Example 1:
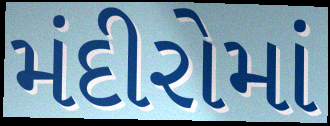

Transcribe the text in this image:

મંદીરોમાં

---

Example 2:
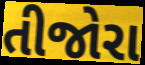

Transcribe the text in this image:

તીજોરા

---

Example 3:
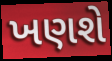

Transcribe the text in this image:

ખણશે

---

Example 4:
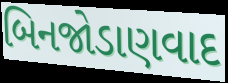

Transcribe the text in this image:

બિનજોડાણવાદ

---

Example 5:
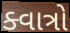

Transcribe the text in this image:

ક્વાત્રો